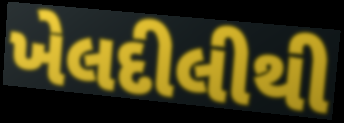
ખેલદીલીથી